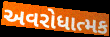
અવરોધાત્મક